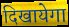
दिखायेगा